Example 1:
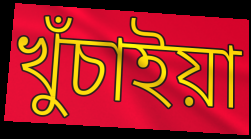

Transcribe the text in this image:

খুঁচাইয়া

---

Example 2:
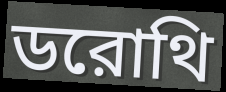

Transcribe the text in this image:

ডরোথি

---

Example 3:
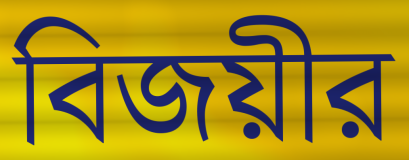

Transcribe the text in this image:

বিজয়ীর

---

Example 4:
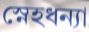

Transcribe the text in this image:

স্নেহধন্যা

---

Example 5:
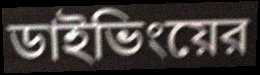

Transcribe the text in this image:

ডাইভিংয়ের